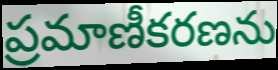
ప్రమాణీకరణను